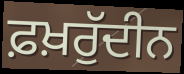
ਫ਼ਖ਼ਰੁੱਦੀਨ